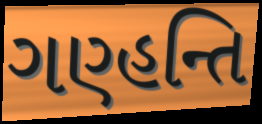
ગણ્હન્તિ